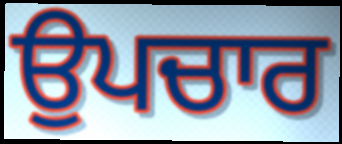
ਉਪਚਾਰ